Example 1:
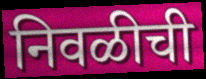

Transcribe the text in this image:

निवळीची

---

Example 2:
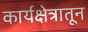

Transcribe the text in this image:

कार्यक्षेत्रातून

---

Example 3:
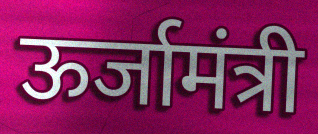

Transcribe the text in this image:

ऊर्जामंत्री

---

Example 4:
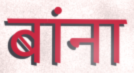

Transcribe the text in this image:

बांना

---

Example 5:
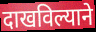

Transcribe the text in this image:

दाखविल्याने